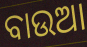
ବାଉଆ